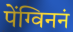
पेंग्विननं